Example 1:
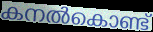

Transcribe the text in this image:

കനൽകൊണ്ട്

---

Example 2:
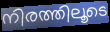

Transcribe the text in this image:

നിരത്തിലൂടെ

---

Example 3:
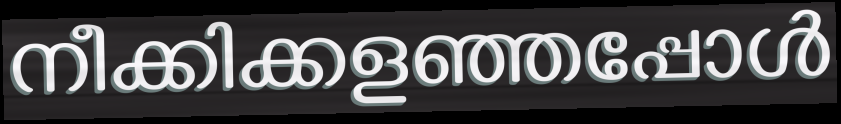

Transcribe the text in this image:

നീക്കിക്കളഞ്ഞപ്പോൾ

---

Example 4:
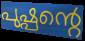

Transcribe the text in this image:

പുഷ്പന്റെ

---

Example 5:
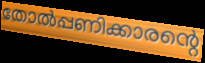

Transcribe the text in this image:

തോൽപ്പണിക്കാരന്റെ